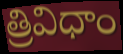
త్రివిధాం